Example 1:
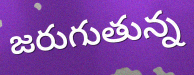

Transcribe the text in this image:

జరుగుతున్న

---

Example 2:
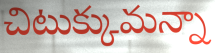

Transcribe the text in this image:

చిటుక్కుమన్నా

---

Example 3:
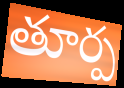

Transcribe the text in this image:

తూర్ప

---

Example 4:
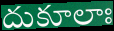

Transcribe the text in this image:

దుకూలాః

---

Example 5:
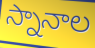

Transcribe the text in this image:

స్నానాల